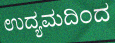
ಉದ್ಯಮದಿಂದ